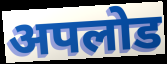
अपलोड